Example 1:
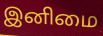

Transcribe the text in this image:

இனிமை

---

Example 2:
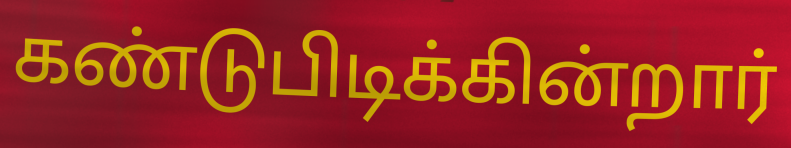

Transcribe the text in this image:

கண்டுபிடிக்கின்றார்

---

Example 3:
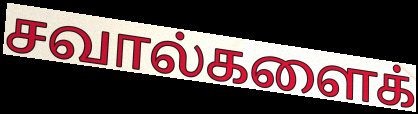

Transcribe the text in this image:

சவால்களைக்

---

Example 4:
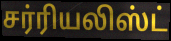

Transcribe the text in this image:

சர்ரியலிஸ்ட்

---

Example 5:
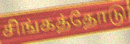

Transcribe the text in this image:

சிங்கத்தோடு